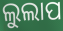
ଲୁଲାପ